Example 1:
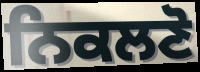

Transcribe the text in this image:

ਨਿਕਲਣੋ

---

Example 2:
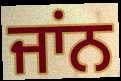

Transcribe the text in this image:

ਜਾਂਨ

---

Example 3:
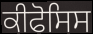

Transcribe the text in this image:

ਕੀਫੋਸਿਸ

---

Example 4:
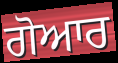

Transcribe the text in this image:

ਗੋਆਰ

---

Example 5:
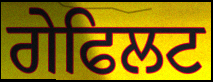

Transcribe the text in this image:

ਗੇਫਿਲਟ